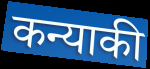
कन्याकी